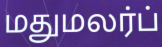
மதுமலர்ப்